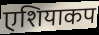
एशियाकप